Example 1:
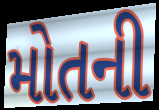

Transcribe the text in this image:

મોતની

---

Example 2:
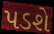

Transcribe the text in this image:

પડશે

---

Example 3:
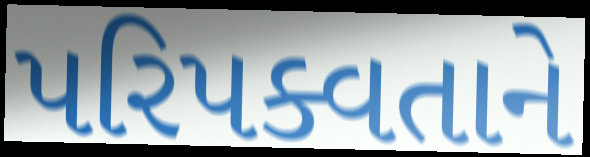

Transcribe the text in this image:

પરિપક્વતાને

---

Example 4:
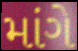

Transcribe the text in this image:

માંગે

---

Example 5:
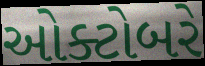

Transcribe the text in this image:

ઓક્ટોબરે